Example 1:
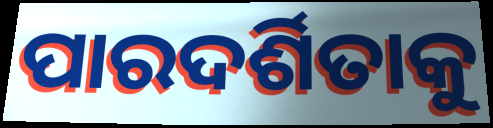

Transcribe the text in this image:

ପାରଦର୍ଶିତାକୁ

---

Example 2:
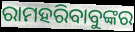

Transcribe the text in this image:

ରାମହରିବାବୁଙ୍କର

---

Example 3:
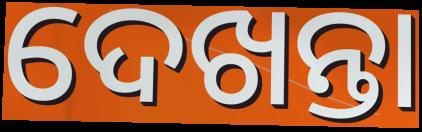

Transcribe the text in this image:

ଦେଖନ୍ତା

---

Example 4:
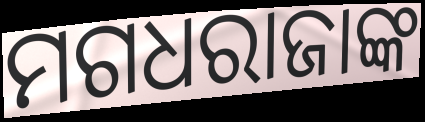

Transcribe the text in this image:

ମଗଧରାଜାଙ୍କ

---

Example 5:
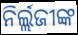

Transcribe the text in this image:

ନିର୍ଲ୍ଲଜୀଙ୍କ